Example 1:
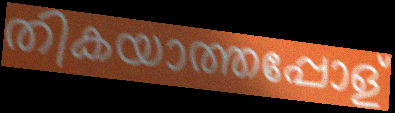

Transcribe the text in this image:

തികയാത്തപ്പോള്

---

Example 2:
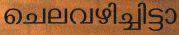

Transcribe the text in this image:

ചെലവഴിച്ചിട്ടാ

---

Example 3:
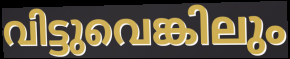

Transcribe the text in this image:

വിട്ടുവെങ്കിലും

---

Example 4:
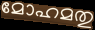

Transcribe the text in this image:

മോഹമതു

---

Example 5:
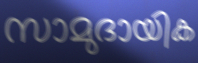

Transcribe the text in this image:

സാമുദായിക